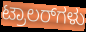
ಟ್ರಾಲರ್‌ಗಳು